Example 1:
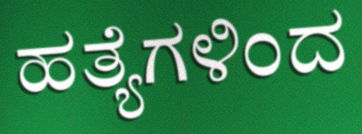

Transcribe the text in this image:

ಹತ್ಯೆಗಳಿಂದ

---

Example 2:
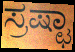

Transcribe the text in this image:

ಸ್ರಷ್ಟಾ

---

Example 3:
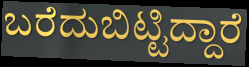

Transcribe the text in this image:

ಬರೆದುಬಿಟ್ಟಿದ್ದಾರೆ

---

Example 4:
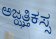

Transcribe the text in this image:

ಅಜ್ಝತ್ತಿಕಸ್ಸ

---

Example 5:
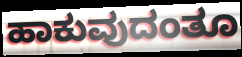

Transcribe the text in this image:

ಹಾಕುವುದಂತೂ